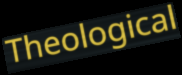
Theological